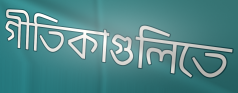
গীতিকাগুলিতে